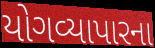
યોગવ્યાપારના